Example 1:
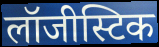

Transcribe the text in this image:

लॉजीस्टिक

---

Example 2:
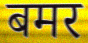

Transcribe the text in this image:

बमर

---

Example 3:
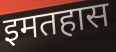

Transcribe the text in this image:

इमतहास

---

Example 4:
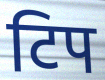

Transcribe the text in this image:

टिप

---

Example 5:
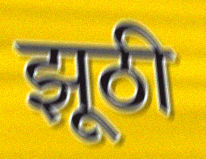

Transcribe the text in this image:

झूठी